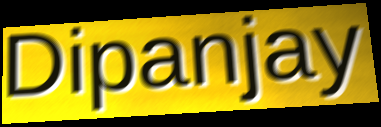
Dipanjay